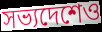
সভ্যদেশেও